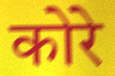
कोरे